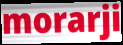
morarji